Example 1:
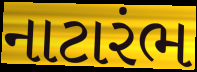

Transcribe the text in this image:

નાટારંભ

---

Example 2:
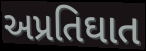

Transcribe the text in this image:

અપ્રતિઘાત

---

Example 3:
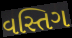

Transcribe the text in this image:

વસ્તિગ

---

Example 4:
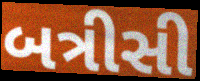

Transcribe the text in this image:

બત્રીસી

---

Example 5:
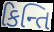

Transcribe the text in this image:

કિન્તિ